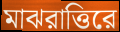
মাঝরাত্তিরে